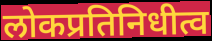
लोकप्रतिनिधीत्व